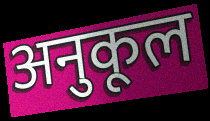
अनुकूल